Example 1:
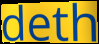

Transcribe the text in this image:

deth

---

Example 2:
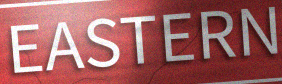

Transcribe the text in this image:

EASTERN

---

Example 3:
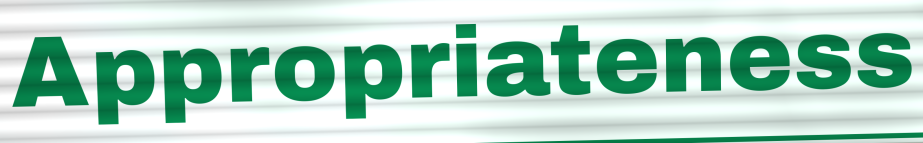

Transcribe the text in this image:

Appropriateness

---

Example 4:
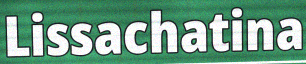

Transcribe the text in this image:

Lissachatina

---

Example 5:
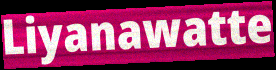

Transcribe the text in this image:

Liyanawatte